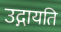
उद्गायति